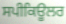
ਸਪੀਕਿਊਲਰ